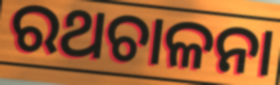
ରଥଚାଳନା